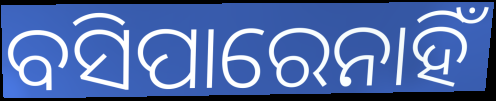
ବସିପାରେନାହିଁ